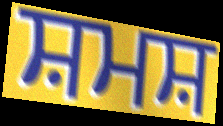
ਸ਼ਮਸ਼